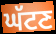
ਘੱਟਣ